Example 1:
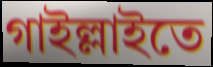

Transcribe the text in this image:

গাইল্লাইতে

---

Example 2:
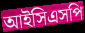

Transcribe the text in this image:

আইসিএসপি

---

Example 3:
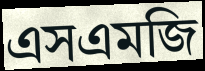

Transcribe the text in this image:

এসএমজি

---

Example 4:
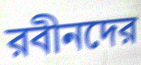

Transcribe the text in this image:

রবীনদের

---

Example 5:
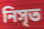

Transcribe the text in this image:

নিসৃত